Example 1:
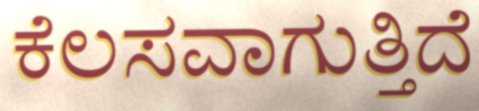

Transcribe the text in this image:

ಕೆಲಸವಾಗುತ್ತಿದೆ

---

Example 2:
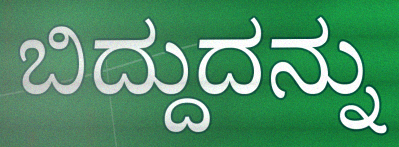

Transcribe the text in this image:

ಬಿದ್ದುದನ್ನು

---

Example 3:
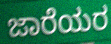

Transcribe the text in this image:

ಜಾರೆಯರ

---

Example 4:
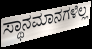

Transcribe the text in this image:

ಸ್ಥಾನಮಾನಗಳಿಲ್ಲ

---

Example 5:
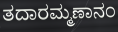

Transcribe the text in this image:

ತದಾರಮ್ಮಣಾನಂ